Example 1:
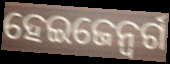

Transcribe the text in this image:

ହେଇଜେନ୍ବର୍ଗ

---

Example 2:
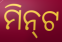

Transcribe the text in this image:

ମିନ୍‌ଟ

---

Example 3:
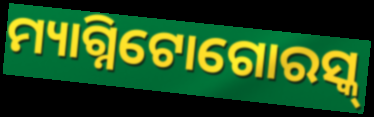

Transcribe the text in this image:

ମ୍ୟାଗ୍ନିଟୋଗୋରସ୍କ୍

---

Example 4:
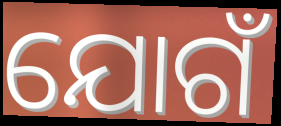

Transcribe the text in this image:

ଯୋଗଁ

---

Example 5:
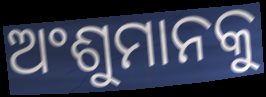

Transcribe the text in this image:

ଅଂଶୁମାନକୁ